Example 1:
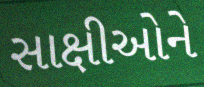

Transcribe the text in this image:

સાક્ષીઓને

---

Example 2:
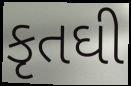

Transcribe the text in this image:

કૃતઘી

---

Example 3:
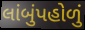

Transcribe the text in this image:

લાંબુંપહોળું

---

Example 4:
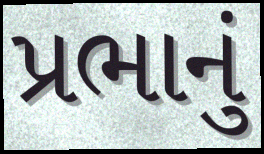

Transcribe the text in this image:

પ્રભાનું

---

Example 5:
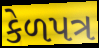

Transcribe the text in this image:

કેળપત્ર